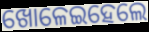
ଖୋଳେଇହେଲେ